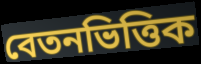
বেতনভিত্তিক